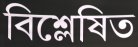
বিশ্লেষিত